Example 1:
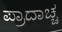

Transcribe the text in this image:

ಪ್ರಾದಾಚ್ಚ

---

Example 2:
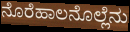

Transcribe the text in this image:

ನೊರೆಹಾಲನೊಲ್ಲೆನು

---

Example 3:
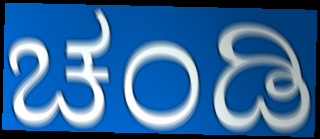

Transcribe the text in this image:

ಚಂಡಿ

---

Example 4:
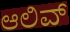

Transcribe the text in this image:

ಆಲಿವ್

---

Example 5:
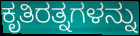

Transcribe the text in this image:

ಕೃತಿರತ್ನಗಳನ್ನು